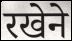
रखेने